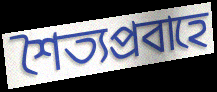
শৈত্যপ্রবাহে